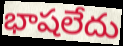
భాషలేదు